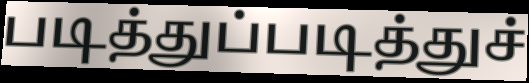
படித்துப்படித்துச்